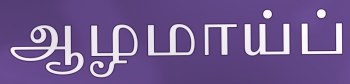
ஆழமாய்ப்